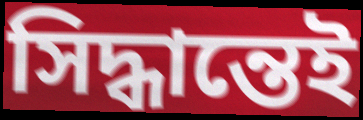
সিদ্ধান্তেই